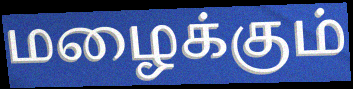
மழைக்கும்